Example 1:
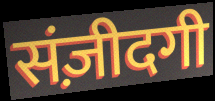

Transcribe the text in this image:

संज़ीदगी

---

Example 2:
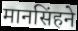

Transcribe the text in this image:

मानसिंहने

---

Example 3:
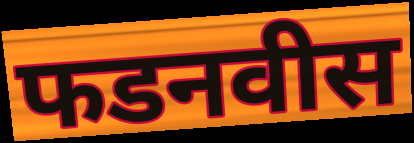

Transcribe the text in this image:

फडनवीस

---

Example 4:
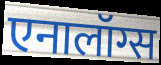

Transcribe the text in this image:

एनालॉग्स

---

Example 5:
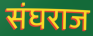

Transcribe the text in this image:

संघराज